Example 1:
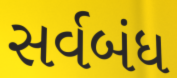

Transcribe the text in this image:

સર્વબંધ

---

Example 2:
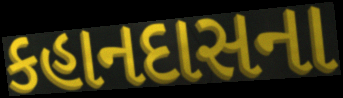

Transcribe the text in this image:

કહાનદાસના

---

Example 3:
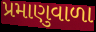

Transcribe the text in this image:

પ્રમાણુવાળા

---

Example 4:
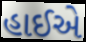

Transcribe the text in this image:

હાઈએ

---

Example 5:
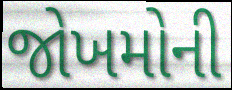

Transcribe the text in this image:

જોખમોની